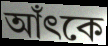
আঁৎকে